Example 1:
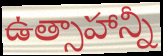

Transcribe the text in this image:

ఉత్సాహాన్నీ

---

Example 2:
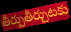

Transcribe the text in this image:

తీర్పుతీర్చుటకు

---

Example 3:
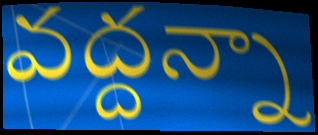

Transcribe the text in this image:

వద్దన్నా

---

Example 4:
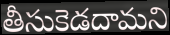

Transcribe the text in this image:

తీసుకెడదామని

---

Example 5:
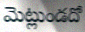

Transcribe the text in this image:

మెట్లుండదో